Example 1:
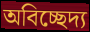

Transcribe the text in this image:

অবিচ্ছেদ্য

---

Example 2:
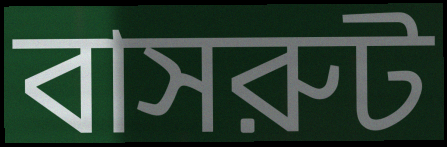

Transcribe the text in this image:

বাসরুট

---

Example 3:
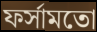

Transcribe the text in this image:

ফর্সামতো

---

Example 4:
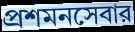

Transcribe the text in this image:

প্রশমনসেবার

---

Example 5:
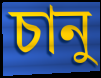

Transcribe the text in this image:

চানু